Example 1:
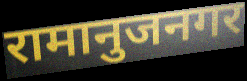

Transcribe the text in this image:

रामानुजनगर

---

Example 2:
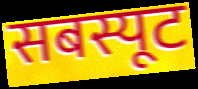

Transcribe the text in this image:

सबस्यूट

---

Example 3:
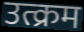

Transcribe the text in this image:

उत्क्रम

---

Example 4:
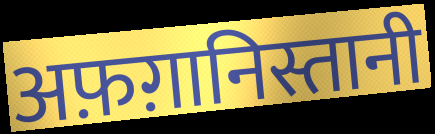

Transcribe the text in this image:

अफ़ग़ानिस्तानी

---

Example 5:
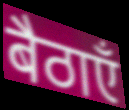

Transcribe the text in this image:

बैठाएँ